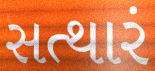
સત્થારં